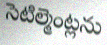
సెటిల్మెంట్లను